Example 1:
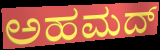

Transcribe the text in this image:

ಅಹಮದ್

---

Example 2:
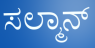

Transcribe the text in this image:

ಸಲ್ಮಾನ್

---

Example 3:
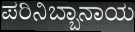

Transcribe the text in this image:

ಪರಿನಿಬ್ಬಾನಾಯ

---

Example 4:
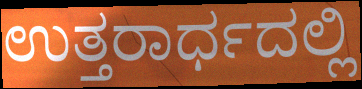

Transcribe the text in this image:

ಉತ್ತರಾರ್ಧದಲ್ಲಿ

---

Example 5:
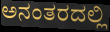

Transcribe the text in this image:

ಅನಂತರದಲ್ಲಿ